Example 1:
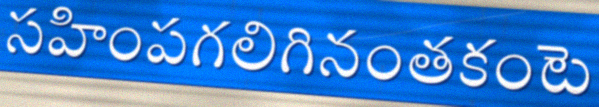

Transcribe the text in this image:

సహింపగలిగినంతకంటె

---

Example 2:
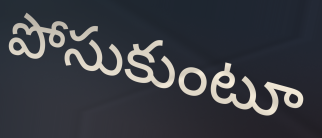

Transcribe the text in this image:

పోసుకుంటూ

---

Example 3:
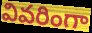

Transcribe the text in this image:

వివరింగా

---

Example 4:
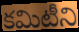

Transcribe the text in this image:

కమిటీని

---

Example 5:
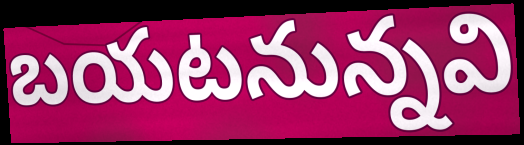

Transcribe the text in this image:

బయటనున్నవి